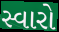
સ્વારો